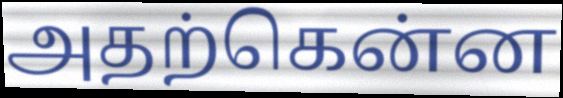
அதற்கென்ன